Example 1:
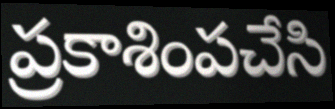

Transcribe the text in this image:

ప్రకాశింపచేసి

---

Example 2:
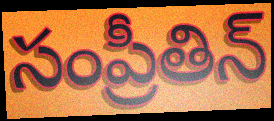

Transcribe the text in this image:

సంప్రీతిన్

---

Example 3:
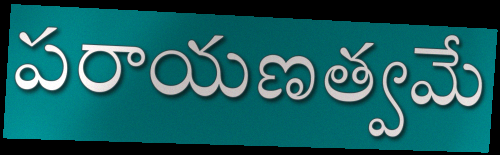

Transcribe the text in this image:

పరాయణత్వమే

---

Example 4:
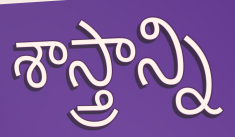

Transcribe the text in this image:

శాస్త్రాన్ని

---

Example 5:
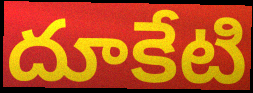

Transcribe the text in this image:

దూకేటి